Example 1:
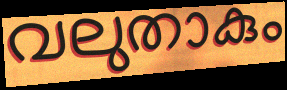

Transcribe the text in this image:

വലുതാകും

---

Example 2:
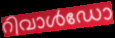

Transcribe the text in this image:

റിവാൾഡോ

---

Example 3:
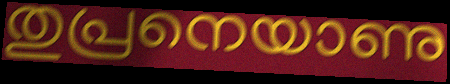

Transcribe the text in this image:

തുപ്രനെയാണു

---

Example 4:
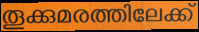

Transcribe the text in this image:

തൂക്കുമരത്തിലേക്ക്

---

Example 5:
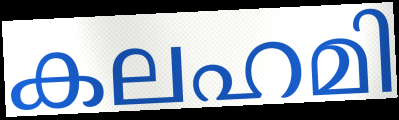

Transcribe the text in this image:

കലഹമി